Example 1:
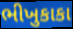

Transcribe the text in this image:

ભીખુકાકા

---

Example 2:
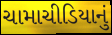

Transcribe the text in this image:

ચામાચીડિયાનું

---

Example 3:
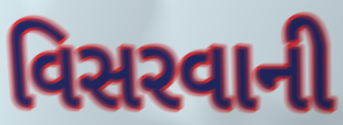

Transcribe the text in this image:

વિસરવાની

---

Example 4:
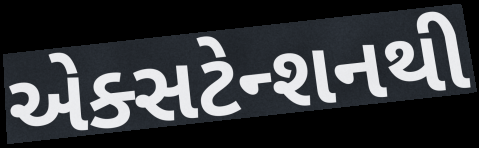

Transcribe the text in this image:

એક્સટેન્શનથી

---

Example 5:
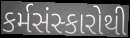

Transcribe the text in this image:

કર્મસંસ્કારોથી